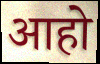
आहो